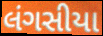
લંગસીયા